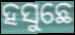
ହସୁଛେ